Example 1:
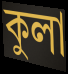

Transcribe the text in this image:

কুলা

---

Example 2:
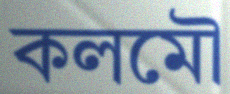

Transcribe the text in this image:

কলমৌ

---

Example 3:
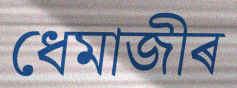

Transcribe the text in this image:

ধেমাজীৰ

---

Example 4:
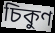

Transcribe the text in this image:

চিকুণ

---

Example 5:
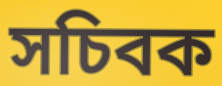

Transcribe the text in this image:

সচিবক